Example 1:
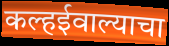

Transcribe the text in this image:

कल्हईवाल्याचा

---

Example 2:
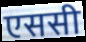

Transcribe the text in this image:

एससी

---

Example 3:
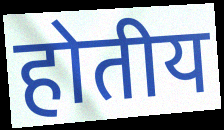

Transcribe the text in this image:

होतीय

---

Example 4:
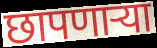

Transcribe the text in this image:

छापणाऱ्या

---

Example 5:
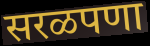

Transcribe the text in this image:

सरळपणा